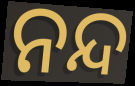
ନନ୍ଦ